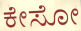
ಕೇಸೋ